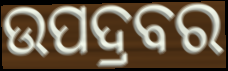
ଉପଦ୍ରବର